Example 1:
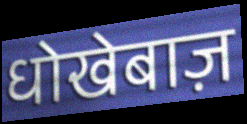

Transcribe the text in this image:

धोखेबाज़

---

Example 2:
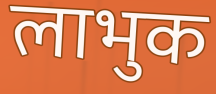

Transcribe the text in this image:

लाभुक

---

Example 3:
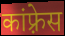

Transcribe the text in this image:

कांफ़्रेस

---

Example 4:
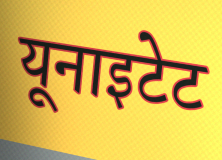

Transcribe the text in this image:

यूनाइटेट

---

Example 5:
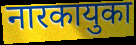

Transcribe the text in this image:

नारकायुका